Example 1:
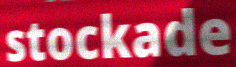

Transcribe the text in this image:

stockade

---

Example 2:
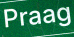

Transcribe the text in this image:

Praag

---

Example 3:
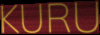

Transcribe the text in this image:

KURU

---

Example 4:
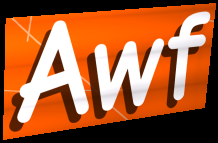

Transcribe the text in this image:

Awf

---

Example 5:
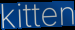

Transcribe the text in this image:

kitten